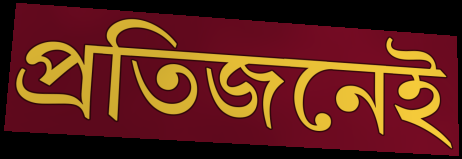
প্ৰতিজনেই